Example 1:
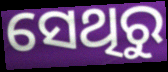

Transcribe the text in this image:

ସେଥିରୁ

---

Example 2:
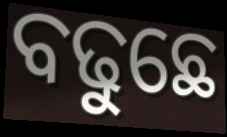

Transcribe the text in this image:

ବଢୁଛେ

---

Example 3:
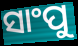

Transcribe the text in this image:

ସାଂପୁ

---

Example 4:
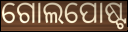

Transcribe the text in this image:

ଗୋଲପୋଷ୍ଟ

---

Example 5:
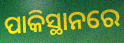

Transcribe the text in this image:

ପାକିସ୍ଥାନରେ